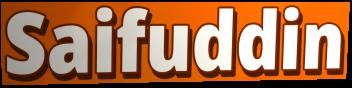
Saifuddin